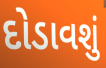
દોડાવશું